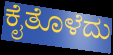
ಕೈತೊಳೆದು